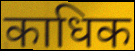
काधिक